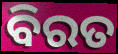
ବିରତ